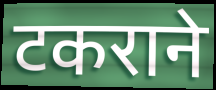
टकराने